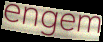
engem